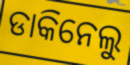
ଡାକିନେଲୁ